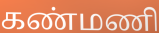
கண்மணி